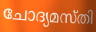
ചോദ്യമസ്തി